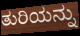
ತುರಿಯನ್ನು